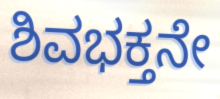
ಶಿವಭಕ್ತನೇ